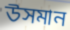
উসমান